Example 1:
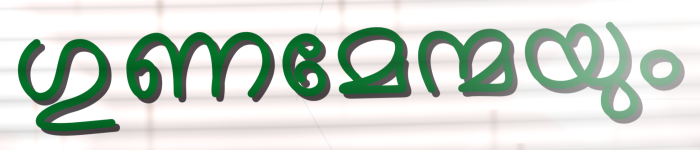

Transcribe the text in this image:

ഗുണമേന്മയും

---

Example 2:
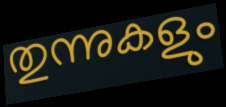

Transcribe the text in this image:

തുന്നുകളും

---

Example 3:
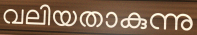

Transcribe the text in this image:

വലിയതാകുന്നു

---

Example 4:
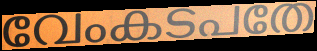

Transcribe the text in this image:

വേംകടപതേ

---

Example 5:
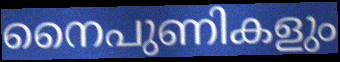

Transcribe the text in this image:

നൈപുണികളും